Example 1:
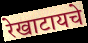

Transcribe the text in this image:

रेखाटायचे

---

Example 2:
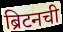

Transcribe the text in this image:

ब्रिटनची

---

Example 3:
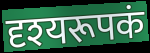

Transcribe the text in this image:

दृश्‍यरूपकं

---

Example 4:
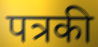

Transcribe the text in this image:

पत्रकी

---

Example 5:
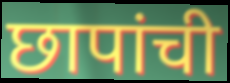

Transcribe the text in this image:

छापांची